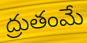
ద్రుతంమే